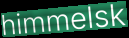
himmelsk